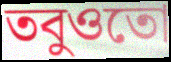
তবুওতো